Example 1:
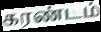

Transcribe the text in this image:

கரண்டம்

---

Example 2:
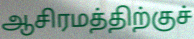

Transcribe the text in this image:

ஆசிரமத்திற்குச்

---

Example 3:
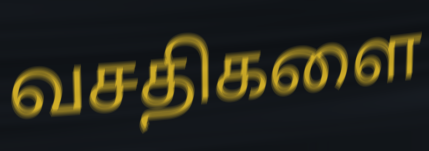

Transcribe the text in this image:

வசதிகளை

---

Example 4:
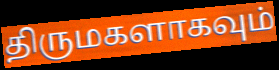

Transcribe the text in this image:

திருமகளாகவும்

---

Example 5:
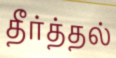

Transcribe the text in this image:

தீர்த்தல்